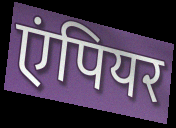
एंपियर